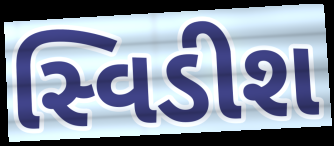
સ્વિડીશ